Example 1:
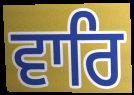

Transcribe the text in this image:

ਵਾਰਿ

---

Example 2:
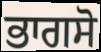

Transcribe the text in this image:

ਭਾਗਸੋ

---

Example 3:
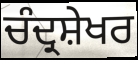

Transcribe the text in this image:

ਚੰਦ੍ਰਸ਼ੇਖਰ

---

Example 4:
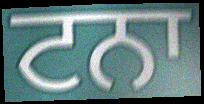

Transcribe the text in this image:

ਟਨਾ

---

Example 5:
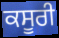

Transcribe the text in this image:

ਕਸੂਰੀ